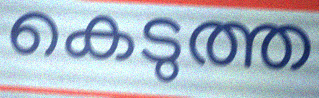
കെടുത്ത